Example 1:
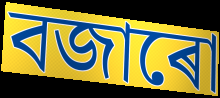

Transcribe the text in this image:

বজাৰো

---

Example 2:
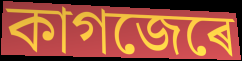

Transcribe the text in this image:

কাগজেৰে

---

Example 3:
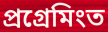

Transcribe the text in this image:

প্ৰগ্ৰেমিংত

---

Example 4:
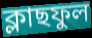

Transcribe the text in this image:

ক্লাছফুল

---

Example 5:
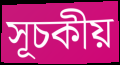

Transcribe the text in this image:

সূচকীয়